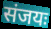
संजयः